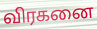
விரகனை